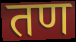
तण